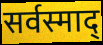
सर्वस्माद्